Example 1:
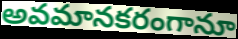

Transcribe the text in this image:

అవమానకరంగానూ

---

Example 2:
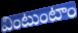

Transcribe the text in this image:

వింటుంటాం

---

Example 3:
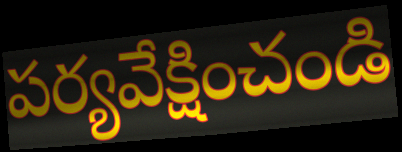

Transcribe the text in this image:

పర్యవేక్షించండి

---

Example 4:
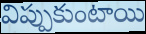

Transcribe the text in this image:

విప్పుకుంటాయి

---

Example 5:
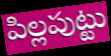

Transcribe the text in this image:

పిల్లపుట్టు